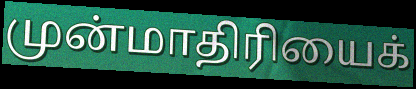
முன்மாதிரியைக்